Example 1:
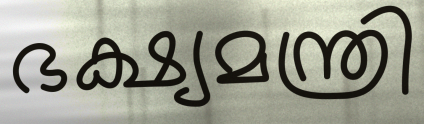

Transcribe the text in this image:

ഭക്ഷ്യമന്ത്രി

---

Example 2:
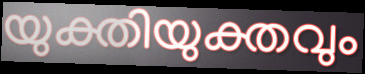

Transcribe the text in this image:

യുക്തിയുക്തവും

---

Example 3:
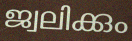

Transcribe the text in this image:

ജ്വലിക്കും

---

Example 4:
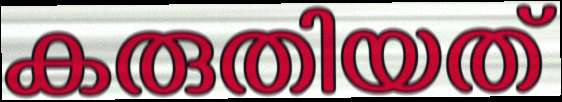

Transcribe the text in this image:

കരുതിയത്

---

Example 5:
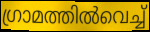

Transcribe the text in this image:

ഗ്രാമത്തിൽവെച്ച്